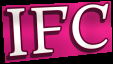
IFC